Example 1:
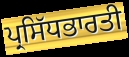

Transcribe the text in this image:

ਪ੍ਰਸਿੱਧਭਾਰਤੀ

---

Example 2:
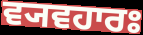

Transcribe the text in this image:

ਵ੍ਯਵਹਾਰਃ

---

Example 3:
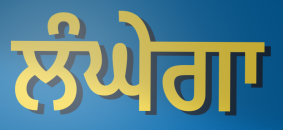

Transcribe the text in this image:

ਲੰਘੇਗਾ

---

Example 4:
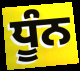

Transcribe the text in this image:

ਧੂੰਨ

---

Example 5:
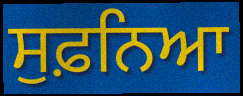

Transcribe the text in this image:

ਸੁਫ਼ਨਿਆ